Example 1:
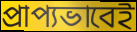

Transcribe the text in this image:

প্রাপ্যভাবেই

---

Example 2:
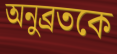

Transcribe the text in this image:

অনুব্রতকে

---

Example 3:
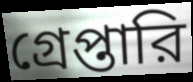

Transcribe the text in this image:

গ্রেপ্তারি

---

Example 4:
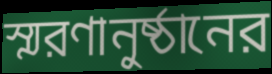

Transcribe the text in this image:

স্মরণানুষ্ঠানের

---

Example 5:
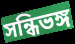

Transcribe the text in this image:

সন্ধিভঙ্গ